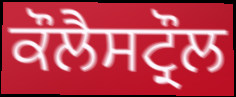
ਕੌਲੈਸਟ੍ਰੌਲ